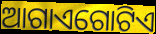
ଆଗାଏଗୋଟିଏ